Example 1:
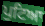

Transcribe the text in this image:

ਪੁਟਿਆ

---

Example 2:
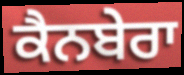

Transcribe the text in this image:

ਕੈਨਬੇਰਾ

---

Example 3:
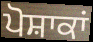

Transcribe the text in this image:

ਪੋਸ਼ਾਕਾਂ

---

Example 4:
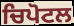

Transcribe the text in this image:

ਚਿਪੋਟਲ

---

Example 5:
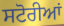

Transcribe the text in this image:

ਸਟੋਰੀਆਂ